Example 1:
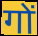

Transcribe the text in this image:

गों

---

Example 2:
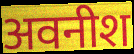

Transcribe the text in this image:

अवनीश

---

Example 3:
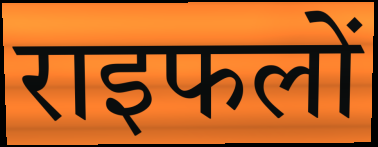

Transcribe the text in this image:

राइफलों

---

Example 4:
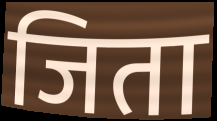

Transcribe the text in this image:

जिता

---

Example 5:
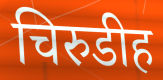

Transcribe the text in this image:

चिरुडीह